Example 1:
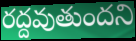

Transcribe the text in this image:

రద్దవుతుందని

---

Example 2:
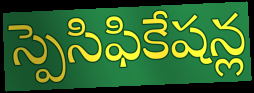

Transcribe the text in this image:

స్పెసిఫికేషన్ల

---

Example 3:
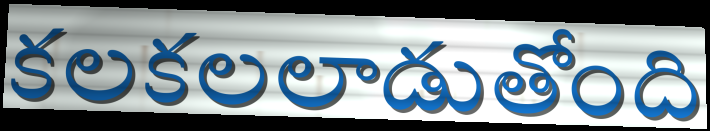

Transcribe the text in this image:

కలకలలాడుతోంది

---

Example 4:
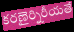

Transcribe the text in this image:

కరణైర్నిరీయతే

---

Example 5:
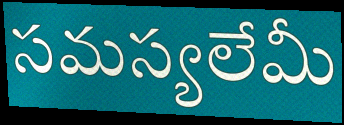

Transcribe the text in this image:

సమస్యలేమీ